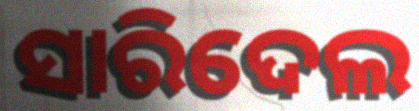
ସାରିଦେଲ